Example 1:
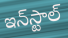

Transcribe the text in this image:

ఇన్‌స్టాల్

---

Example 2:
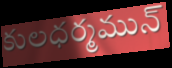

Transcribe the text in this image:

కులధర్మమున్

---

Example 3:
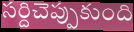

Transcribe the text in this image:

సర్దిచెప్పుకుంది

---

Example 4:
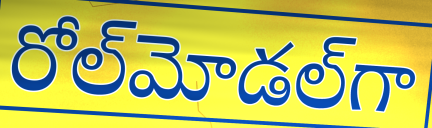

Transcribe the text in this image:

రోల్‌మోడల్‌గా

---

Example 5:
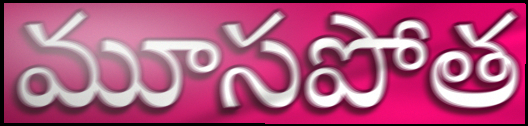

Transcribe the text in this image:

మూసపోత